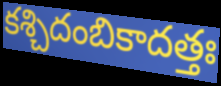
కశ్చిదంబికాదత్తః